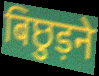
बिछुड़ने